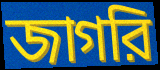
জাগরি